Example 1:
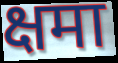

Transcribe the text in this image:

क्षमा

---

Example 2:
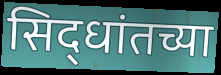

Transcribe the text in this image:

सिद्धांतच्या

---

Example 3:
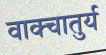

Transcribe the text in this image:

वाक्चातुर्य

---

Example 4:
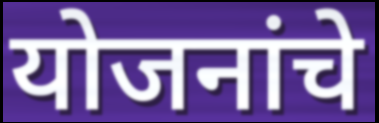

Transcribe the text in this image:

योजनांचे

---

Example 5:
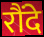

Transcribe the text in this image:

रौंदे